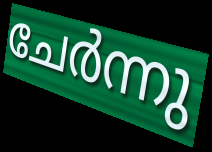
ചേർന്നു